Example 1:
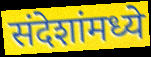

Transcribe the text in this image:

संदेशांमध्ये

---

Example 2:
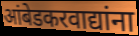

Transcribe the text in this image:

आंबेडकरवाद्यांना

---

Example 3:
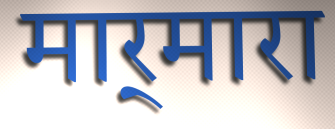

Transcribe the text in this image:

मार्मारा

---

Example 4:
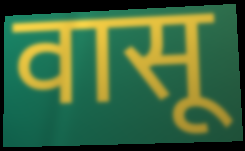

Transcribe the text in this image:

वासू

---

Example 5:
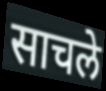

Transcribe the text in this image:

साचले